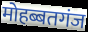
मोहब्बतगंज